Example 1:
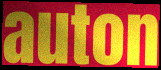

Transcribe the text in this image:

auton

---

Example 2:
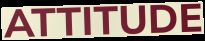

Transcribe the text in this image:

ATTITUDE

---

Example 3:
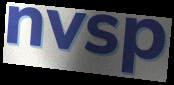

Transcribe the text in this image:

nvsp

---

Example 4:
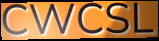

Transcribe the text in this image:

CWCSL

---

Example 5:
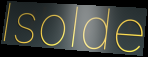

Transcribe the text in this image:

Isolde